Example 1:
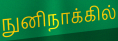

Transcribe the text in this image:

நுனிநாக்கில்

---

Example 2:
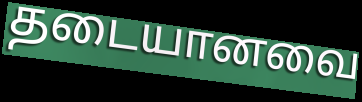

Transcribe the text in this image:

தடையானவை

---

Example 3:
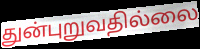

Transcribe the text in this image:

துன்புறுவதில்லை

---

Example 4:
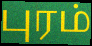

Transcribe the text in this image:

புரம்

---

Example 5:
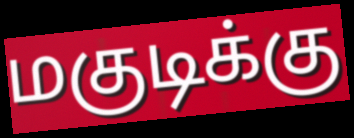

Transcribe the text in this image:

மகுடிக்கு